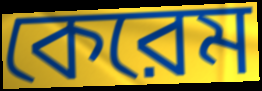
কেরেম